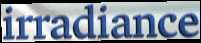
irradiance